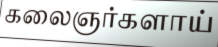
கலைஞர்களாய்